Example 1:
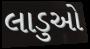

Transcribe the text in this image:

લાડુઓ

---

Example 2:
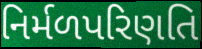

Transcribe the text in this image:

નિર્મળપરિણતિ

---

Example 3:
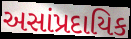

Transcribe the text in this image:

અસાંપ્રદાયિક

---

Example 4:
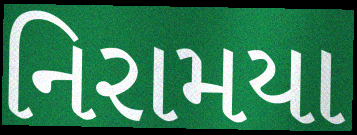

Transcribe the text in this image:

નિરામયા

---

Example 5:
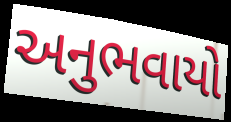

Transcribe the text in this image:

અનુભવાયો